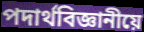
পদাৰ্থবিজ্ঞানীয়ে